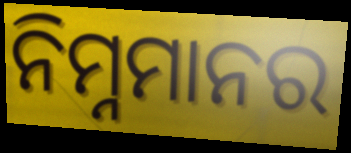
ନିମ୍ନମାନର